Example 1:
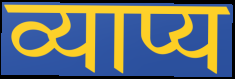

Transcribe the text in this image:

व्याप्य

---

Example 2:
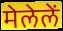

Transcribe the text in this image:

मेलेलें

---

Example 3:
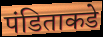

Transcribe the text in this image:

पंडिताकडे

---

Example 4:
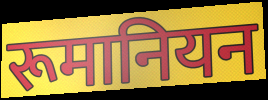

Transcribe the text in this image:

रूमानियन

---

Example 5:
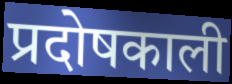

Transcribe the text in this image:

प्रदोषकाली